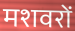
मशवरों